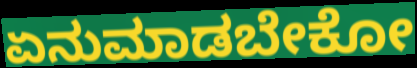
ಏನುಮಾಡಬೇಕೋ